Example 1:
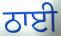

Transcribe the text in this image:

ਠਾਈ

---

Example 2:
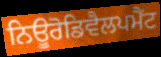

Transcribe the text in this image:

ਨਿਊਰੋਡਿਵੈਲਪਮੈਂਟ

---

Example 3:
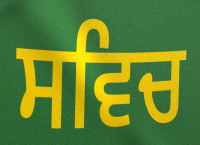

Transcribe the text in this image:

ਸਵਿਚ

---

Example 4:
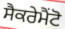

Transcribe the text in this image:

ਸੈਕਰੇਮੈਂਟੋ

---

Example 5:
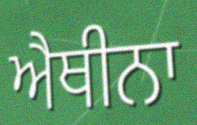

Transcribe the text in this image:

ਐਥੀਨਾ